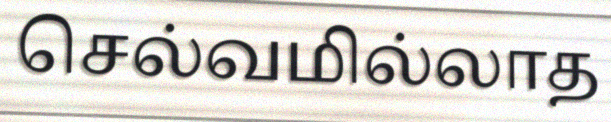
செல்வமில்லாத